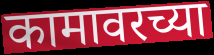
कामावरच्या